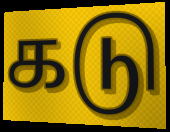
கடு